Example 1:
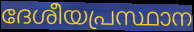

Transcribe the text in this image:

ദേശീയപ്രസ്ഥാന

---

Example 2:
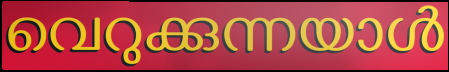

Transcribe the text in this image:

വെറുക്കുന്നയാൾ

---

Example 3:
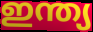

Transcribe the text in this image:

ഇന്ത്യ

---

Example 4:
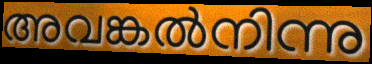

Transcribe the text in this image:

അവങ്കൽനിന്നു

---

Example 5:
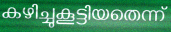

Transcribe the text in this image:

കഴിച്ചുകൂട്ടിയതെന്ന്